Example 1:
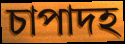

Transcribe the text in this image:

চাপাদহ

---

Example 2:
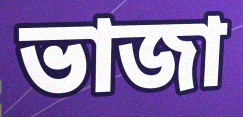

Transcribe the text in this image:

ভাজা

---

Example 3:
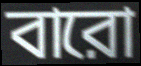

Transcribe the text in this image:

বারো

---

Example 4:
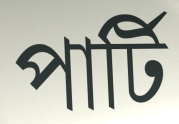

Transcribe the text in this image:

পার্টি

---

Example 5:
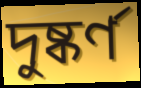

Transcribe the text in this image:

দুষ্কর্ণ